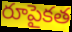
రూపైకత